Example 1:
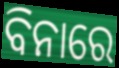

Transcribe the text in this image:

ବିନାରେ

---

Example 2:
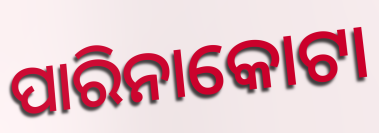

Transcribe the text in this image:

ପାରିନାକୋଟା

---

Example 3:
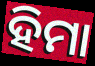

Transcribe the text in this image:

ହିମା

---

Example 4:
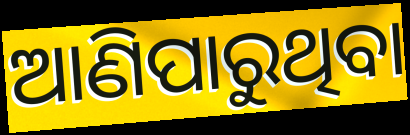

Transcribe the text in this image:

ଆଣିପାରୁଥିବା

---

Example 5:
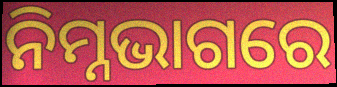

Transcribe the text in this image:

ନିମ୍ନଭାଗରେ